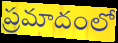
ప్రమాదంలో